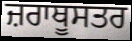
ਜ਼ਰਾਥੂਸਤਰ